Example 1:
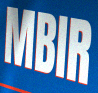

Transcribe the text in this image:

MBIR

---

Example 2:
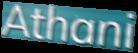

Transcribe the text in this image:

Athani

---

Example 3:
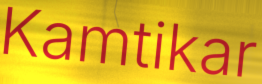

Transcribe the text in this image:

Kamtikar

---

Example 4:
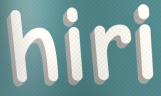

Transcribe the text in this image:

hiri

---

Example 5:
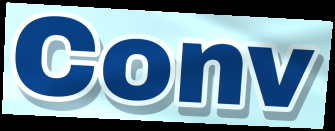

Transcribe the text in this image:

Conv